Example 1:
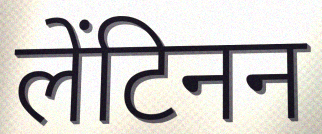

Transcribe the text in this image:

लेंटिनन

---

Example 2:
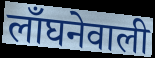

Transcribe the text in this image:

लाँघनेवाली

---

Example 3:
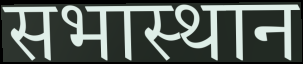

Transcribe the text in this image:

सभास्थान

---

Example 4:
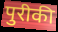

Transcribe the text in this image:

पुरीकी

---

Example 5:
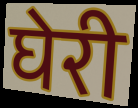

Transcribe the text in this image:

घेरी